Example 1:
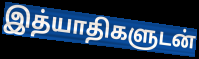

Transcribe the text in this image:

இத்யாதிகளுடன்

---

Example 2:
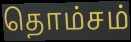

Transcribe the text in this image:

தொம்சம்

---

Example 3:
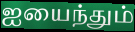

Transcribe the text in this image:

ஐயைந்தும்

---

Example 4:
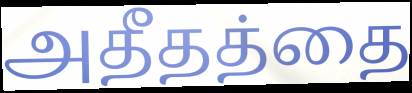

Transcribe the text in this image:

அதீதத்தை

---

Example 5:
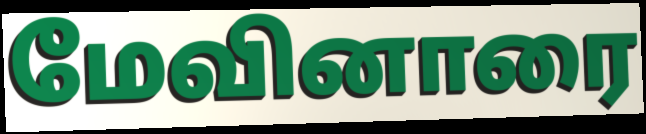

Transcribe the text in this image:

மேவினாரை